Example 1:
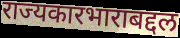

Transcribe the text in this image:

राज्यकारभाराबद्दल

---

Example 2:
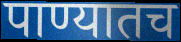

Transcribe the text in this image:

पाण्यातच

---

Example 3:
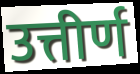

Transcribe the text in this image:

उत्तीर्ण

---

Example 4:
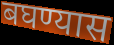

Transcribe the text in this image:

बघण्यास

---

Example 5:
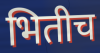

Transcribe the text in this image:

भितीच